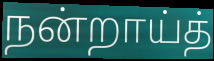
நன்றாய்த்